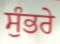
ਸੁੰਭਰੇ